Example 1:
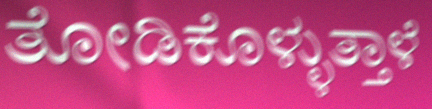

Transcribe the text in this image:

ತೋಡಿಕೊಳ್ಳುತ್ತಾಳೆ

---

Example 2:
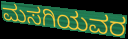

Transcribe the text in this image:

ಮಸಗಿಯವರ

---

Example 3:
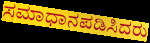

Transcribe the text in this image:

ಸಮಾಧಾನಪಡಿಸಿದರು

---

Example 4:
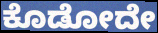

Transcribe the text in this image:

ಕೊಡೋದೇ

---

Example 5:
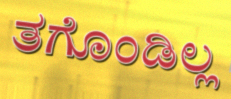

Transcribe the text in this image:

ತಗೊಂಡಿಲ್ಲ